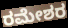
ರಮೇಶರ